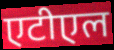
एटीएल